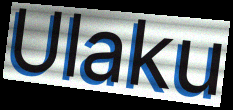
Ulaku